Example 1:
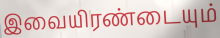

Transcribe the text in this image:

இவையிரண்டையும்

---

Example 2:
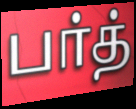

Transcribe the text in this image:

பர்த்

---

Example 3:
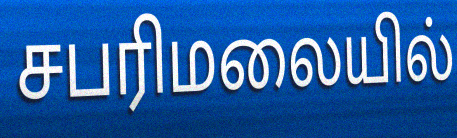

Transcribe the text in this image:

சபரிமலையில்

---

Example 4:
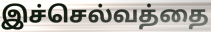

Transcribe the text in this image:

இச்செல்வத்தை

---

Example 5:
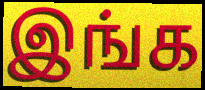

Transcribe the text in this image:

இங்க